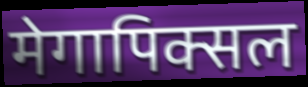
मेगापिक्सल